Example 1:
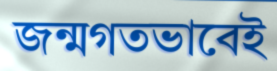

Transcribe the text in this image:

জন্মগতভাবেই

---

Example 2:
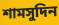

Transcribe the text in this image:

শামসুদিন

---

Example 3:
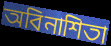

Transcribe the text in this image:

অবিনাশিতা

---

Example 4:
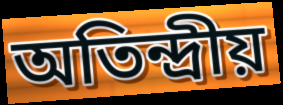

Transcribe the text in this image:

অতিন্দ্রীয়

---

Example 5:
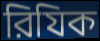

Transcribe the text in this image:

রিযিক